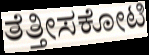
ತೆತ್ತೀಸಕೋಟಿ